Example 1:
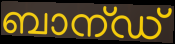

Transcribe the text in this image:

ബാന്ഡ്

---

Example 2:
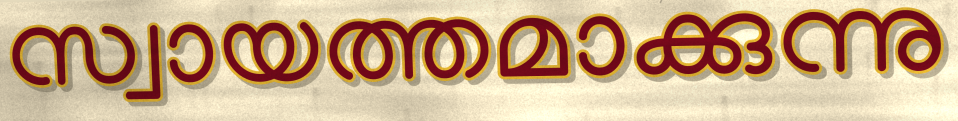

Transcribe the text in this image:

സ്വായത്തമാക്കുന്നു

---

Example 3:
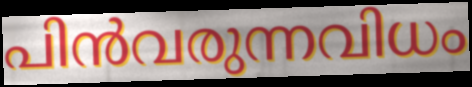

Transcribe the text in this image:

പിൻവരുന്നവിധം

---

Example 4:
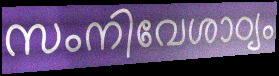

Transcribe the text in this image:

സംനിവേശാഠ്യം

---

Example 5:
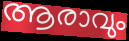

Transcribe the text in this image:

ആരാവും